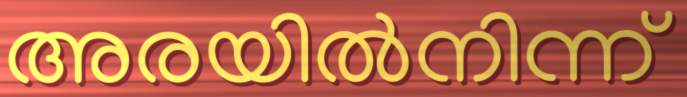
അരയിൽനിന്ന്